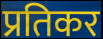
प्रतिकर